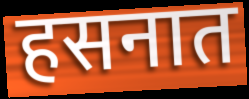
हसनात